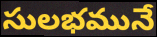
సులభమునే